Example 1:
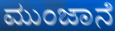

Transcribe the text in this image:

ಮುಂಜಾನೆ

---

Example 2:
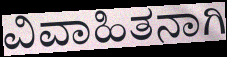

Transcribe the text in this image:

ವಿವಾಹಿತನಾಗಿ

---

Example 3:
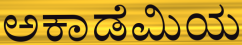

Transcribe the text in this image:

ಅಕಾಡೆಮಿಯ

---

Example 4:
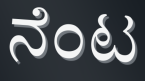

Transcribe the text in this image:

ನೆಂಟ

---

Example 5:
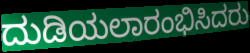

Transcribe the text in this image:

ದುಡಿಯಲಾರಂಭಿಸಿದರು